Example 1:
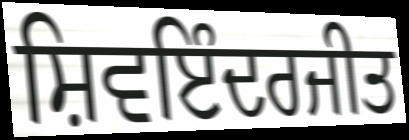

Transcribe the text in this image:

ਸ਼ਿਵਇੰਦਰਜੀਤ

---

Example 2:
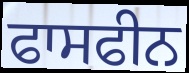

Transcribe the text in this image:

ਫਾਸਫੀਨ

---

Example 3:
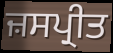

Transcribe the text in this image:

ਜ਼ਸਪ੍ਰੀਤ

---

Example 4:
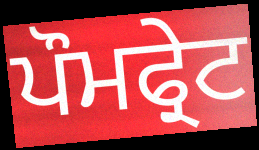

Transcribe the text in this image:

ਪੌਮਫ੍ਰੇਟ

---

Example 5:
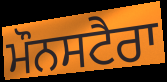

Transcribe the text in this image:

ਮੌਨਸਟੈਰਾ